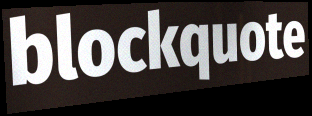
blockquote